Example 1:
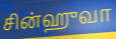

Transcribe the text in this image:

சின்ஹுவா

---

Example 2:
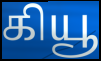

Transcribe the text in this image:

கியூ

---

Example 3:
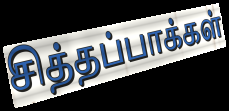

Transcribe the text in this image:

சித்தப்பாக்கள்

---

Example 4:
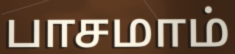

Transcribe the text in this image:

பாசமாம்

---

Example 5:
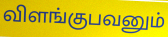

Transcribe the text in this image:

விளங்குபவனும்